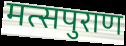
मत्सपुराण